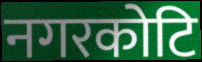
नगरकोटि